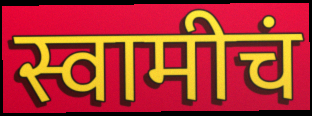
स्वामीचं